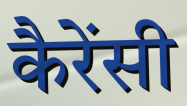
कैरेंसी